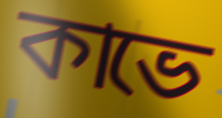
কাভে